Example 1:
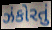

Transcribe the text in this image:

ઝંકોરતું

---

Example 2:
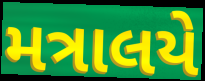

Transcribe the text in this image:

મત્રાલયે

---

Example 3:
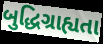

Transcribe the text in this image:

બુદ્ધિગ્રાહ્યતા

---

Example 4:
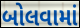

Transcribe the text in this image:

બોલવામાં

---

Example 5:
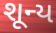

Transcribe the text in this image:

શૂન્ય